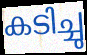
കടിച്ചു